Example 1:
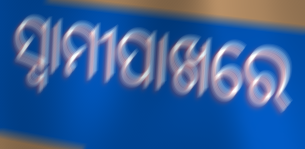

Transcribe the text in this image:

ସ୍ୱାମୀପାଖରେ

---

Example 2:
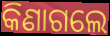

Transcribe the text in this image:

କିଣାଗଲେ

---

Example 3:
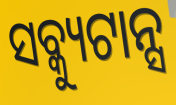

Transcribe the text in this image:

ସବ୍କ୍ୟୁଟାନ୍ସ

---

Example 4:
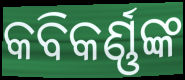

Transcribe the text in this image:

କବିକର୍ଣ୍ଣଙ୍କ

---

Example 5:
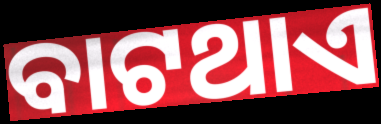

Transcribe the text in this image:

ବାଟଥାଏ